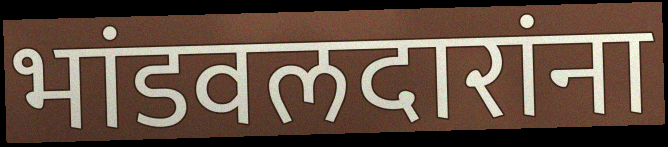
भांडवलदारांना